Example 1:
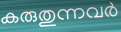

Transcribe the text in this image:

കരുതുന്നവർ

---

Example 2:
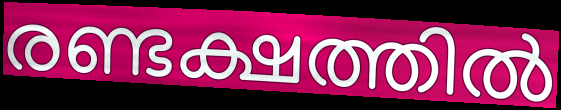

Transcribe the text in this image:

രണ്ടക്ഷത്തിൽ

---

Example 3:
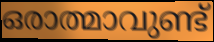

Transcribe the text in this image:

ഒരാത്മാവുണ്ട്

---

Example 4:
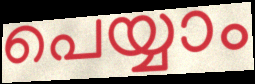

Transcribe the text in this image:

പെയ്യാം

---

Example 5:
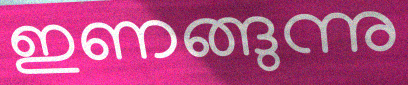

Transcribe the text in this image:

ഇണങ്ങുന്നു